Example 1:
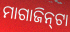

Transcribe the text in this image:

ମାଗାଜିନ୍‌ଟା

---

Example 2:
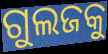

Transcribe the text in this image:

ଗୁଲଜକୁ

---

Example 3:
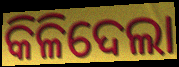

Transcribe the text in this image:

କିଳିଦେଲା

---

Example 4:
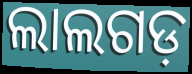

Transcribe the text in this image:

ଲାଲଗଡ଼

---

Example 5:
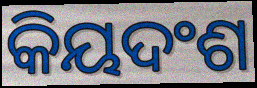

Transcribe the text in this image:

କିୟଦଂଶ